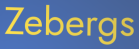
Zebergs